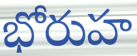
భోరుహ